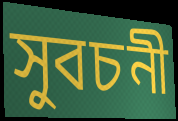
সুবচনী